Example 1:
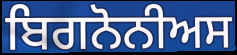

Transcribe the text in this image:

ਬਿਗਨੋਨੀਅਸ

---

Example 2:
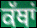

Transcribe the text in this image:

ਕੱਥਾਂ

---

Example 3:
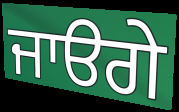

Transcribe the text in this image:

ਜਾੳਗੇ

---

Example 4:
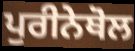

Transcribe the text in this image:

ਪੁਰੀਨੇਥੋਲ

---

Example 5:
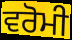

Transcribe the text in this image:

ਵਰੋਮੀ